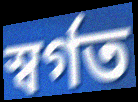
স্বৰ্গত